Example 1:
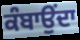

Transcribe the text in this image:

ਕੰਬਾਉਂਦਾ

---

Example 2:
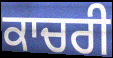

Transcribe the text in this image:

ਕਾਚਰੀ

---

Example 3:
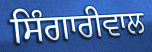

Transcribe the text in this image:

ਸਿੰਗਾਰੀਵਾਲ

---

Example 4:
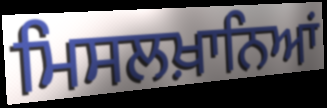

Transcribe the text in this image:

ਮਿਸਲਖ਼ਾਨਿਆਂ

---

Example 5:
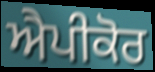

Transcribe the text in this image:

ਐਪੀਕੋਰ